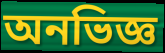
অনভিজ্ঞ